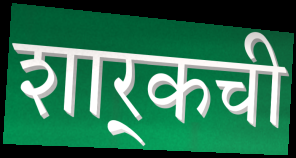
शार्कची